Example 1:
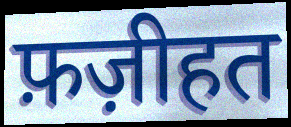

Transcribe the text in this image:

फ़ज़ीहत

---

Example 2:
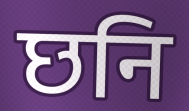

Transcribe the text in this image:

छनि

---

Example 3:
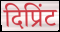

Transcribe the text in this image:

दिप्रिंट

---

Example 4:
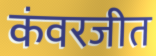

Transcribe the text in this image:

कंवरजीत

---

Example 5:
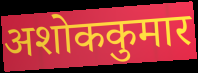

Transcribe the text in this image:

अशोककुमार